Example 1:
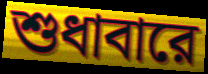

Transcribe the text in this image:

শুধাবারে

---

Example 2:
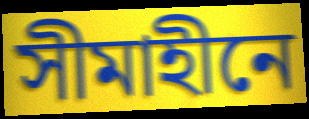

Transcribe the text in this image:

সীমাহীনে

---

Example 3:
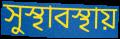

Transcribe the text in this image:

সুস্থাবস্থায়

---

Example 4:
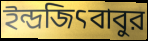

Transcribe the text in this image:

ইন্দ্রজিৎবাবুর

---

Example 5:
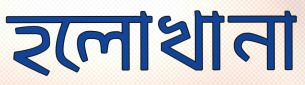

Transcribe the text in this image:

হলোখানা